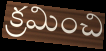
క్రమించి